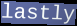
lastly